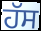
ਹੱਸ